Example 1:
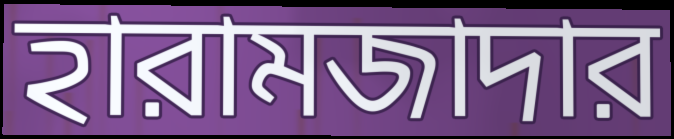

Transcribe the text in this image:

হারামজাদার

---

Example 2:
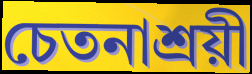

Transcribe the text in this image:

চেতনাশ্রয়ী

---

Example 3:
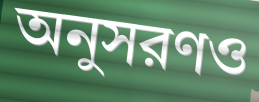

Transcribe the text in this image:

অনুসরণও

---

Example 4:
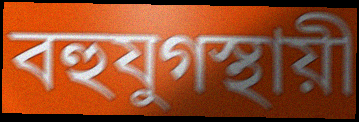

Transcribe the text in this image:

বহুযুগস্থায়ী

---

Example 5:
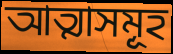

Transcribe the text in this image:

আত্মাসমূহ